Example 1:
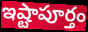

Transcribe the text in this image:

ఇష్టాపూర్తం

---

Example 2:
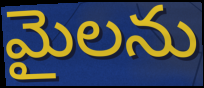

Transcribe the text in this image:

మైలను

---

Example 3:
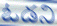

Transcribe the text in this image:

ఓడని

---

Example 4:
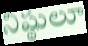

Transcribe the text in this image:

నిష్ఠులూ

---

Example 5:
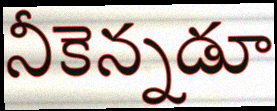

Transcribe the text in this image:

నీకెన్నడూ